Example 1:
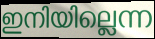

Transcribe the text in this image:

ഇനിയില്ലെന്ന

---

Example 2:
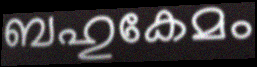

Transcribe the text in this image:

ബഹുകേമം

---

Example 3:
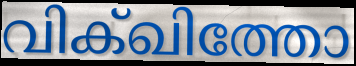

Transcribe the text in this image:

വിക്ഖിത്തോ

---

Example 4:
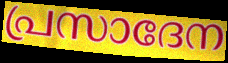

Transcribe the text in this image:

പ്രസാദേന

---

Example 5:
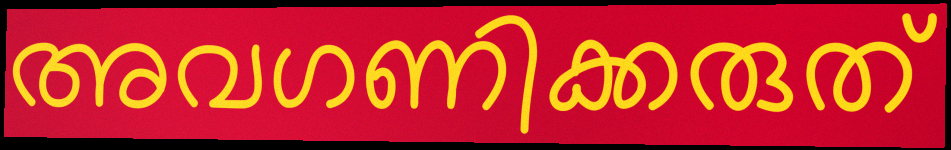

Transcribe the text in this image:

അവഗണിക്കരുത്